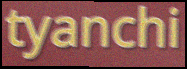
tyanchi